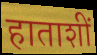
हाताशीं